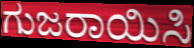
ಗುಜರಾಯಿಸಿ